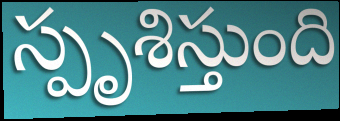
స్పృశిస్తుంది